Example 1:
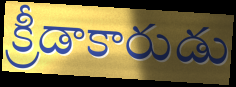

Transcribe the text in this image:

క్రీడాకారుడు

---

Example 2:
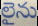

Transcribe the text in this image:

లైను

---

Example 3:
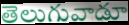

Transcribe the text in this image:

తెలుగువాడూ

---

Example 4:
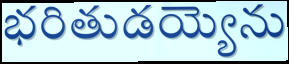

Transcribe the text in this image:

భరితుడయ్యెను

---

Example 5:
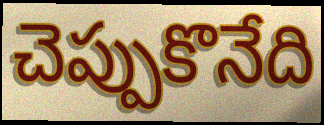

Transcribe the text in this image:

చెప్పుకొనేది